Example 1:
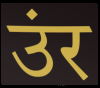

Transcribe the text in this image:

उंर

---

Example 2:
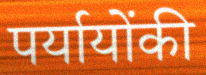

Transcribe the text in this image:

पर्यायोंकी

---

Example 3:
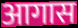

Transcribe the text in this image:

आगास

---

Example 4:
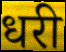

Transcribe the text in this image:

धरी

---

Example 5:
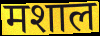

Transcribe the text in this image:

मशाल